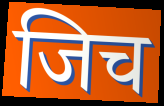
जिच